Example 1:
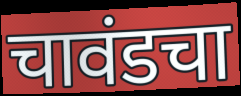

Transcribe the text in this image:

चावंडचा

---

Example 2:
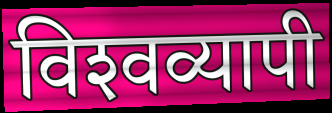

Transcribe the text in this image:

विश्‍वव्यापी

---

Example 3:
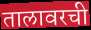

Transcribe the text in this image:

तालावरची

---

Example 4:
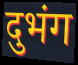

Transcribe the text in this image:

दुभंग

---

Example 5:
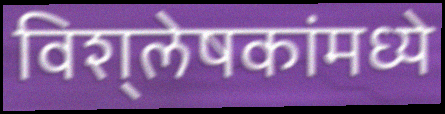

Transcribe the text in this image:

विश्लेषकांमध्ये